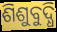
ଶିଶୁବୁଦ୍ଧି